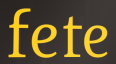
fete